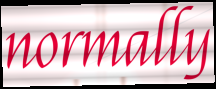
normally